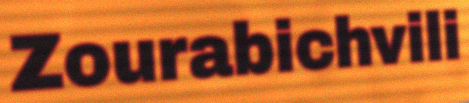
Zourabichvili